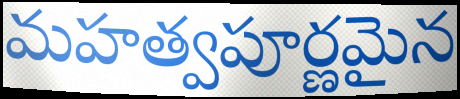
మహత్వపూర్ణమైన